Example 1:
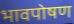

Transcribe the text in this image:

भावपोषण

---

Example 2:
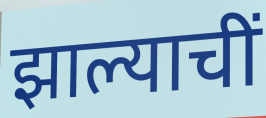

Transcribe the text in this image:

झाल्याचीं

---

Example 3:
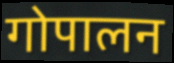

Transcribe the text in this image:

गोपालन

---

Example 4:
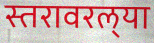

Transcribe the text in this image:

स्तरावरल्या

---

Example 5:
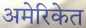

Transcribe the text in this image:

अमेरिकेत